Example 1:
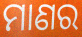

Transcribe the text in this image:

ମାଣର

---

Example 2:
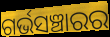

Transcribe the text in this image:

ଗର୍ଭସଞ୍ଚାରର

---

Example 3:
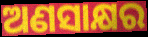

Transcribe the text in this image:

ଅଣସାକ୍ଷର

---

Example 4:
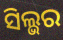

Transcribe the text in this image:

ସିଲ୍ଭର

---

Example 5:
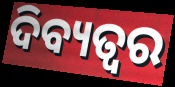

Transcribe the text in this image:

ଦିବ୍ୟତ୍ବର